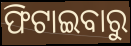
ଫିଟାଇବାରୁ